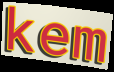
kem